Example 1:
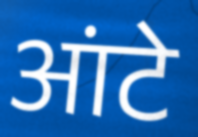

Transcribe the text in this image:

आंटे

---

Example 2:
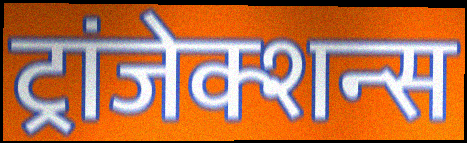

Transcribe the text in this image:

ट्रांजेक्शन्स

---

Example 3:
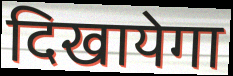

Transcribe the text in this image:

दिखायेगा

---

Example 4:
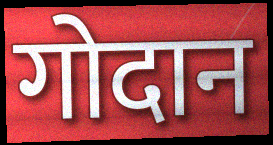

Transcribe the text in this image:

गोदान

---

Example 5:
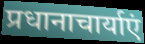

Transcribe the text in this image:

प्रधानाचार्याएं